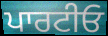
ਪਾਰਟੀਓ